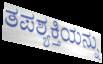
ತಪಶ್ಯಕ್ತಿಯನ್ನು